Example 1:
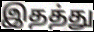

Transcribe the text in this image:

இதத்து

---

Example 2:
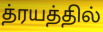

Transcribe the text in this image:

த்ரயத்தில்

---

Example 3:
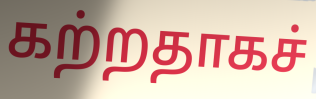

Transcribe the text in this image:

கற்றதாகச்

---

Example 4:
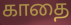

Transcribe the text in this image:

காதை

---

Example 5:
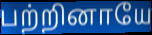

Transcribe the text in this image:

பற்றினாயே